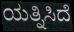
ಯತ್ನಿಸಿದೆ